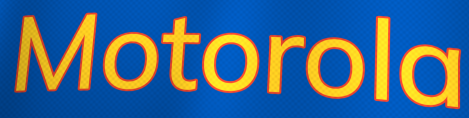
Motorola